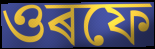
ওৰফে